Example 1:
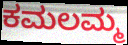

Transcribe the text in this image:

ಕಮಲಮ್ಮ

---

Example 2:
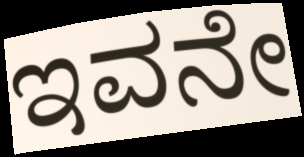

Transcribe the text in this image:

ಇವನೇ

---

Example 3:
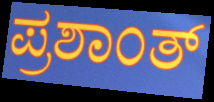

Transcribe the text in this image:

ಪ್ರಶಾಂತ್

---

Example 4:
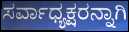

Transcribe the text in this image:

ಸರ್ವಾಧ್ಯಕ್ಷರನ್ನಾಗಿ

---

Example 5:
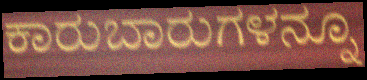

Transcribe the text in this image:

ಕಾರುಬಾರುಗಳನ್ನೂ